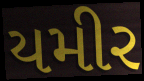
યમીર